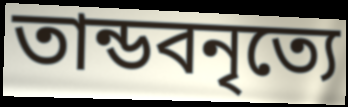
তান্ডবনৃত্যে